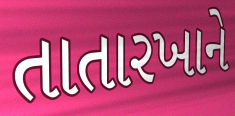
તાતારખાને